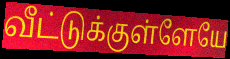
வீட்டுக்குள்ளேயே